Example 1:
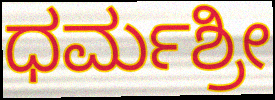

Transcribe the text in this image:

ಧರ್ಮಶ್ರೀ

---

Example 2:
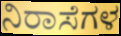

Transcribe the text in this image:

ನಿರಾಸೆಗಳ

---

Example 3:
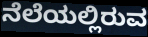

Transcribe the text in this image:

ನೆಲೆಯಲ್ಲಿರುವ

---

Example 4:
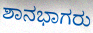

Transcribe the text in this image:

ಶಾನಭಾಗರು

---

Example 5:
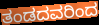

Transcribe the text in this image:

ತಂಡದವರಿಂದ